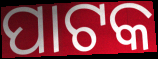
ପାଟକ